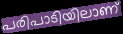
പരിപാടിയിലാണ്